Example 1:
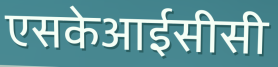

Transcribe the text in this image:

एसकेआईसीसी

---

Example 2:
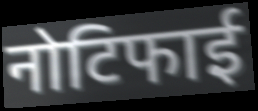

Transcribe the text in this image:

नोटिफाई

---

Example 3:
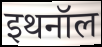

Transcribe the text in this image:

इथनॉल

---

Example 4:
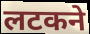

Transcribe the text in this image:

लटकने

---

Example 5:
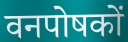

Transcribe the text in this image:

वनपोषकों